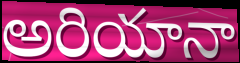
అరియానా